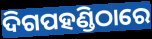
ଦିଗପହଣ୍ଡିଠାରେ